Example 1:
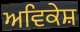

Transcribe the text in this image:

ਅਵਿਕੇਸ਼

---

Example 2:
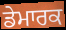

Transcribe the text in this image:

ਡੇਮਾਰਕ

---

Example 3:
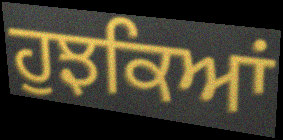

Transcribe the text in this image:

ਹੁਝਕਿਆਂ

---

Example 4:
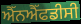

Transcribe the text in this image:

ਐੱਨਐੱਫਡੀਸੀ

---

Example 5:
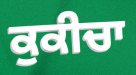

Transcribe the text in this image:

ਕੁਕੀਚਾ